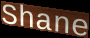
Shane